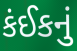
કંઈકનું